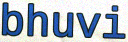
bhuvi